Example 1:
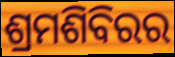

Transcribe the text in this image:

ଶ୍ରମଶିବିରର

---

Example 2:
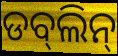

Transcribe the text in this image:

ଡବ୍‌ଲିନ୍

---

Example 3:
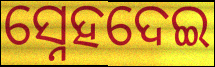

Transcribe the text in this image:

ସ୍ନେହଦେଇ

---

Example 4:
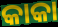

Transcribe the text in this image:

କାକା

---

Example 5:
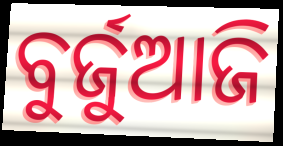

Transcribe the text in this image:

ବୁର୍ଜୁଆଜି